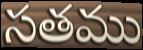
సతము